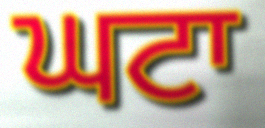
ਘਟਾ